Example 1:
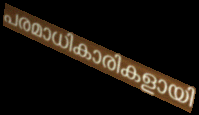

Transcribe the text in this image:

പരമാധികാരികളായി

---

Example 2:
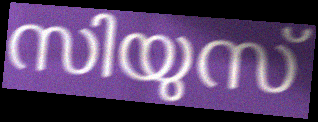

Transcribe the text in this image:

സിയുസ്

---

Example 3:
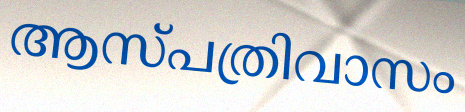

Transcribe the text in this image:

ആസ്പത്രിവാസം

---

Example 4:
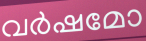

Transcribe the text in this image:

വർഷമോ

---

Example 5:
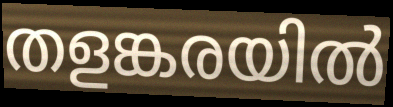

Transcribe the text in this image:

തളങ്കരയിൽ